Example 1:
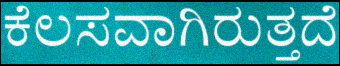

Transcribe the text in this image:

ಕೆಲಸವಾಗಿರುತ್ತದೆ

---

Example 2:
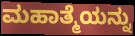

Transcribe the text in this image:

ಮಹಾತ್ಮೆಯನ್ನು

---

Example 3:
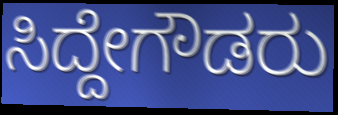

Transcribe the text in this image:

ಸಿದ್ದೇಗೌಡರು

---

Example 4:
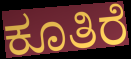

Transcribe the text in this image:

ಕೂತಿರೆ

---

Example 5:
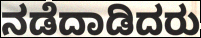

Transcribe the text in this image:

ನಡೆದಾಡಿದರು